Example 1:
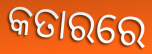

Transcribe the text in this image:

କତାରରେ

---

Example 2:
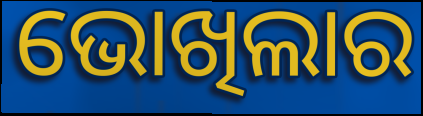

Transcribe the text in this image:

ଭୋଖିଲାର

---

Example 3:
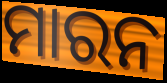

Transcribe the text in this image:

ମାରନ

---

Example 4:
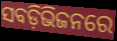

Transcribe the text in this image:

ସବଡ଼ିଭିଜନରେ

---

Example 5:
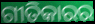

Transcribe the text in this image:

ଗୀତିକାରର